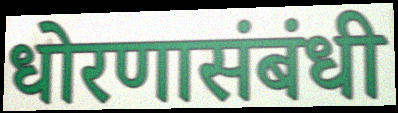
धोरणासंबंधी